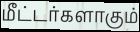
மீட்டர்களாகும்